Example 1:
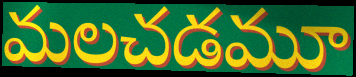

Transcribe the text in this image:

మలచడమూ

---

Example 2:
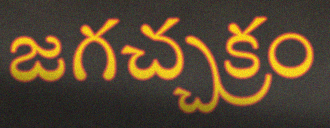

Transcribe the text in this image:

జగచ్చక్రం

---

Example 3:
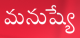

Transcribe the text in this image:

మనుష్యే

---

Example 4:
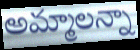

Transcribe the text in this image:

అమ్మాలన్నా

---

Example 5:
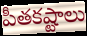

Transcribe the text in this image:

పీతకష్టాలు